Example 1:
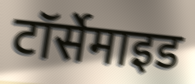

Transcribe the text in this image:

टॉर्सेमाइड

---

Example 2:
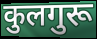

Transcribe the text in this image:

कुलगुरू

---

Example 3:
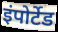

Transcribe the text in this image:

इंपोर्टेड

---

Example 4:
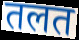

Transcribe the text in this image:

तलत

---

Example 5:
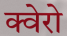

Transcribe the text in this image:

क्वेरो